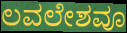
ಲವಲೇಶವೂ